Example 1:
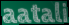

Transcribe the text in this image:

aatali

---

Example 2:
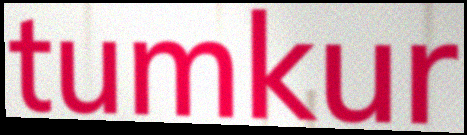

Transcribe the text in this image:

tumkur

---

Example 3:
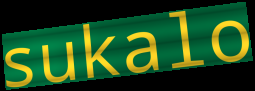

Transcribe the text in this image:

sukalo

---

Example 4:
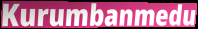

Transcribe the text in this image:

Kurumbanmedu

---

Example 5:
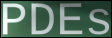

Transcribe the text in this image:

PDEs